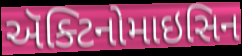
ઍક્ટિનોમાઇસિન